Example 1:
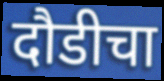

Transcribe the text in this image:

दौडीचा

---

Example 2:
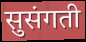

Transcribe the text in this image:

सुसंगती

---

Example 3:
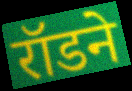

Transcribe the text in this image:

रॉडने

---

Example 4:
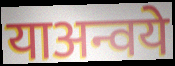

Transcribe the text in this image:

याअन्वये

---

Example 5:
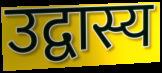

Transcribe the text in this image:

उद्वास्य